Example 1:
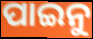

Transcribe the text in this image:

ପାଇନୁ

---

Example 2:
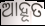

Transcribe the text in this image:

ଆହୂତ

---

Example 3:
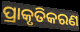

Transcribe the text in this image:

ପ୍ରାକୃତିକରଣ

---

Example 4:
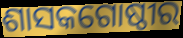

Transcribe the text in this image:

ଶାସକଗୋଷ୍ଠୀର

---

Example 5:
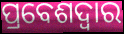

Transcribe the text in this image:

ପ୍ରବେଶଦ୍ଵାର